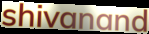
shivanand